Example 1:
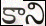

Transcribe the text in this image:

కాని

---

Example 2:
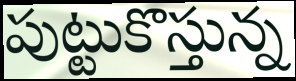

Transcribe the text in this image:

పుట్టుకొస్తున్న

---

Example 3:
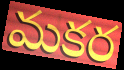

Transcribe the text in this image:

మకర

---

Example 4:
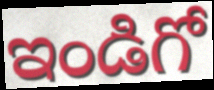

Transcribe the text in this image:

ఇండిగో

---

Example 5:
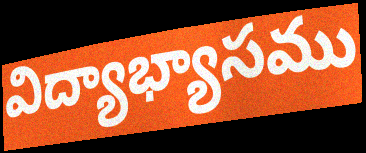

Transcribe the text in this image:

విద్యాభ్యాసము